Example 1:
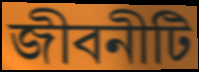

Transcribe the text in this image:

জীবনীটি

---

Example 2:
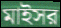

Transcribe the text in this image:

মাইসর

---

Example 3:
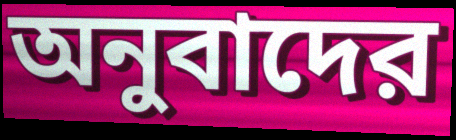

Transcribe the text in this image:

অনুবাদের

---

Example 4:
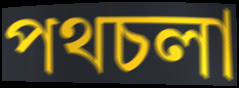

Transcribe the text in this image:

পথচলা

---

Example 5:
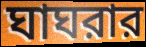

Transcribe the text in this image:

ঘাঘরার